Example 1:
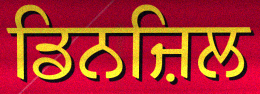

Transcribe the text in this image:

ਡਿਨਜ਼ਿਲ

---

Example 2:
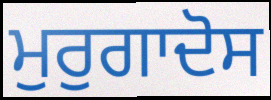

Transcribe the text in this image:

ਮੁਰੁਗਾਦੋਸ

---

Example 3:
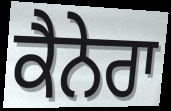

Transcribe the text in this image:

ਕੈਨੇਰਾ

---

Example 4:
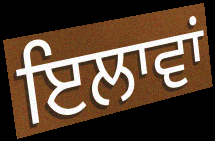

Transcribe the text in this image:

ਇਲਾਵਾਂ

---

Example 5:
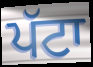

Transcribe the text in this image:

ਪੱਟਾ